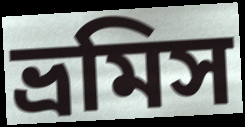
ভ্রমিস